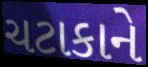
ચટાકાને